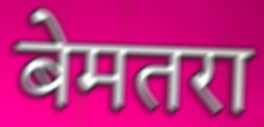
बेमतरा